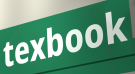
texbook